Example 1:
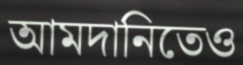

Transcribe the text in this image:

আমদানিতেও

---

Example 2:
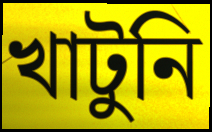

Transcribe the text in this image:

খাটুনি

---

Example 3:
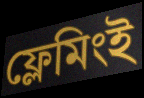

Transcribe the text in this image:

ফ্লেমিংই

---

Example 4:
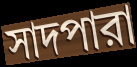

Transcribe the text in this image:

সাদপারা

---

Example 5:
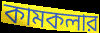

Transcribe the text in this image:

কামকলার